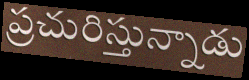
ప్రచురిస్తున్నాడు